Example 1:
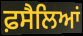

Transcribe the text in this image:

ਫ਼ਸੈਲਿਆਂ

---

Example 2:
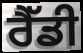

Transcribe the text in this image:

ਰੈੱਡੀ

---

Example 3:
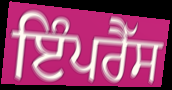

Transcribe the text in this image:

ਇੰਪਰੈੱਸ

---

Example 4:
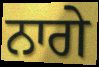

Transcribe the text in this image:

ਨਾਗੇ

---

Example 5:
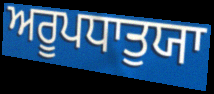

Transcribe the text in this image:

ਅਰੂਪਧਾਤੁਯਾ